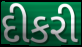
દીકરી